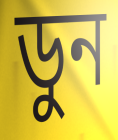
ডুন